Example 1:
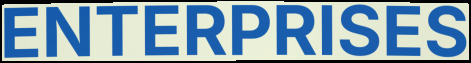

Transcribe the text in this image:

ENTERPRISES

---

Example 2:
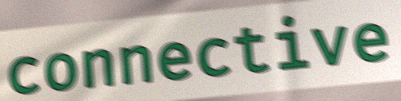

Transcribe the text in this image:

connective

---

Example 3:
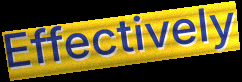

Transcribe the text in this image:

Effectively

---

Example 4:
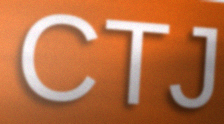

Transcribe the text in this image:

CTJ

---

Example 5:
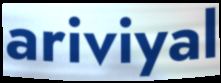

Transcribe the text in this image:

ariviyal